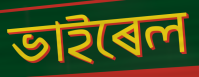
ভাইৰেল